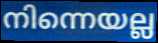
നിന്നെയല്ല